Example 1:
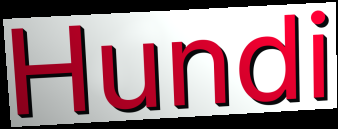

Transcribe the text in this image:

Hundi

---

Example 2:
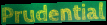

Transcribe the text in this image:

Prudential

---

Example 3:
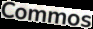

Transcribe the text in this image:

Commos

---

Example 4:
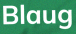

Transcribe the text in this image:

Blaug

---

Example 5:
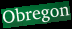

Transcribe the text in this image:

Obregon